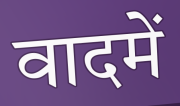
वादमें